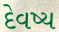
દેવષ્ય